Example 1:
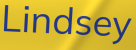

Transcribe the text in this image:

Lindsey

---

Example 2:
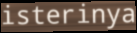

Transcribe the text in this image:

isterinya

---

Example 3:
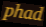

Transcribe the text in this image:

phad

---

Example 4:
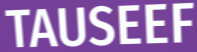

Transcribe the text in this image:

TAUSEEF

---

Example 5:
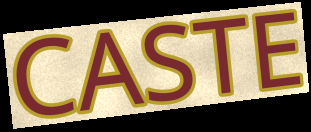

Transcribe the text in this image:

CASTE